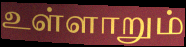
உள்ளாறும்